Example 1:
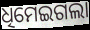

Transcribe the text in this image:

ଧିମେଇଗଲା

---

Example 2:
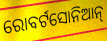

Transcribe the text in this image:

ରୋବର୍ଟସୋନିଆନ୍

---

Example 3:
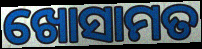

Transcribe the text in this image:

ଖୋସାମତ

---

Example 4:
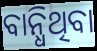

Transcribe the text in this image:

ବାନ୍ଧିଥିବା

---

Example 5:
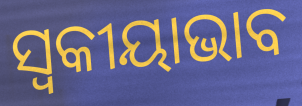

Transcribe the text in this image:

ସ୍ୱକୀୟାଭାବ